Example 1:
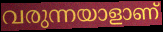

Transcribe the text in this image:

വരുന്നയാളാണ്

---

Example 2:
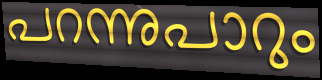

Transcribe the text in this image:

പറന്നുപാറും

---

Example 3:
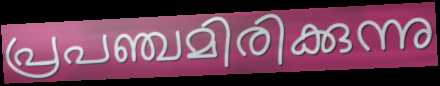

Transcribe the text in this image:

പ്രപഞ്ചമിരിക്കുന്നു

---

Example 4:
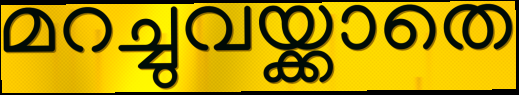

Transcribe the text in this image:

മറച്ചുവയ്ക്കാതെ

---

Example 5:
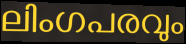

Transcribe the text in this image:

ലിംഗപരവും